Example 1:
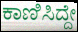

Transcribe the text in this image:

ಕಾಣಿಸಿದ್ದೇ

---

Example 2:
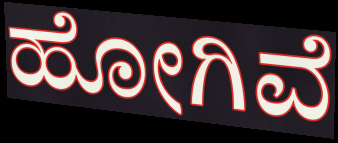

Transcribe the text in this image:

ಹೋಗಿವೆ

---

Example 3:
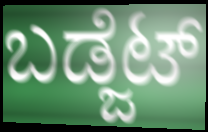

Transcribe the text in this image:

ಬಡ್ಜೆಟ್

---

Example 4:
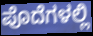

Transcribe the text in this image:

ಪೊದೆಗಳಲ್ಲಿ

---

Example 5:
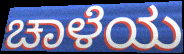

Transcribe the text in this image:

ಚಾಳೆಯ